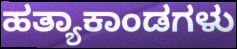
ಹತ್ಯಾಕಾಂಡಗಳು